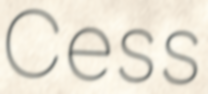
Cess